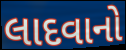
લાદવાનો